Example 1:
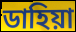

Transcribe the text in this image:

ডাহিয়া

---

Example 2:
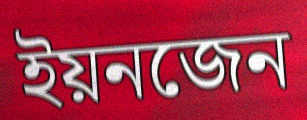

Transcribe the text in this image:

ইয়নজেন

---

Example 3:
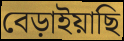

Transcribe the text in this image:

বেড়াইয়াছি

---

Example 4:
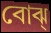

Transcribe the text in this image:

বোঝ্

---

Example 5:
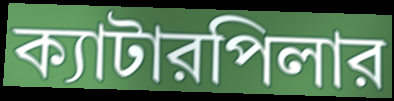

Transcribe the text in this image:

ক্যাটারপিলার